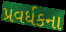
પ્રવર્ધકના